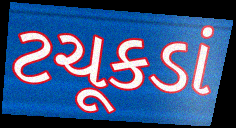
ટચૂકડાં